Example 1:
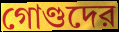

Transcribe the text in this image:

গোণ্ডদের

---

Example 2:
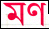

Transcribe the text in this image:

মণ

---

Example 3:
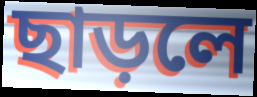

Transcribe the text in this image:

ছাড়লে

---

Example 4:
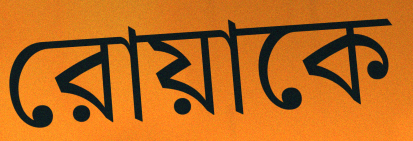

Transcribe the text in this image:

রোয়াকে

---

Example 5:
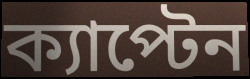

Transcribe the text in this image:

ক্যাপ্টেন